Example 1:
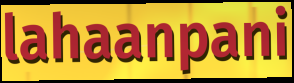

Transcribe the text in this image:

lahaanpani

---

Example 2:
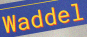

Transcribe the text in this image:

Waddel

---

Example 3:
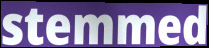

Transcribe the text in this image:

stemmed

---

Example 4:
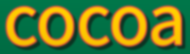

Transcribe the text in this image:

cocoa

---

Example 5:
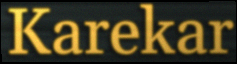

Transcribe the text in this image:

Karekar